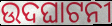
ଉଦଘାଟନୀ